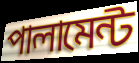
পালামেন্ট